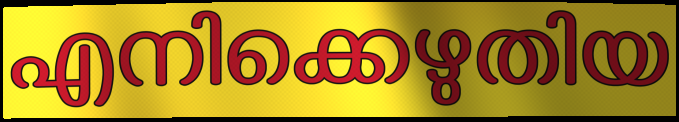
എനിക്കെഴുതിയ